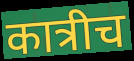
कात्रीच